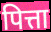
पित्ता